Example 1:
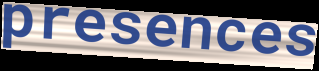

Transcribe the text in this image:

presences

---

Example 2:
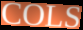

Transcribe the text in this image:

COLS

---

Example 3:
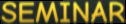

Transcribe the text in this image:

SEMINAR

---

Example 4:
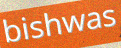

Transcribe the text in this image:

bishwas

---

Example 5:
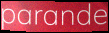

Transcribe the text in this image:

parande